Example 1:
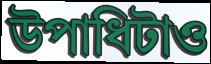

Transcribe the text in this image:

উপাধিটাও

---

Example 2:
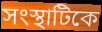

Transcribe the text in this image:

সংস্থাটিকে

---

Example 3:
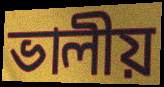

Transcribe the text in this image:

ভালীয়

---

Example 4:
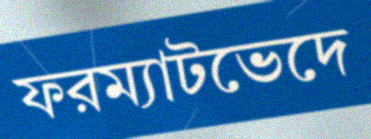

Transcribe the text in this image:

ফরম্যাটভেদে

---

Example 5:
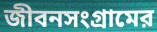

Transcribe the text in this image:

জীবনসংগ্রামের